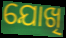
ଯୋଖି